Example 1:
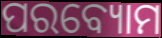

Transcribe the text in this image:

ପରବ୍ୟୋମ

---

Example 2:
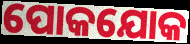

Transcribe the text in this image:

ପୋକଯୋକ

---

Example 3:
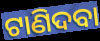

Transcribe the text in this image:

ଟାଣିଦବା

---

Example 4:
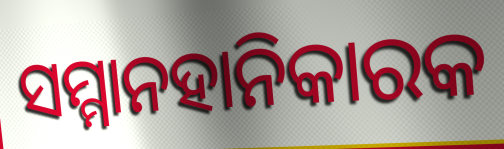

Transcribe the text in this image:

ସମ୍ମାନହାନିକାରକ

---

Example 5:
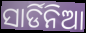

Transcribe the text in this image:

ସାର୍ଡିନିଆ